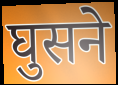
घुसने